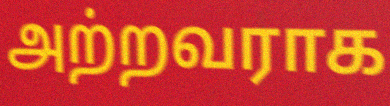
அற்றவராக